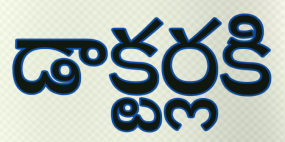
డాక్టర్లకి